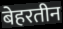
बेहरतीन